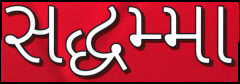
સદ્ધમ્મા